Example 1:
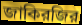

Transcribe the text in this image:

জাকিরজির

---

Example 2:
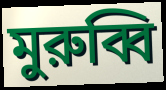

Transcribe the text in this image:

মুরুব্বি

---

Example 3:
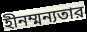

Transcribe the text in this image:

হীনম্মন্যতার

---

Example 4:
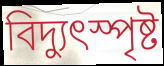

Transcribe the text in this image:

বিদ্যুৎস্পৃষ্ট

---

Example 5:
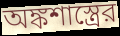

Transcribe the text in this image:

অঙ্কশাস্ত্রের